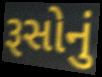
રૂસોનું